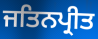
ਜਤਿਨਪ੍ਰੀਤ